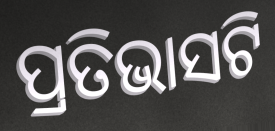
ପ୍ରତିଭାସଟି